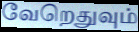
வேறெதுவும்